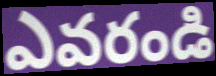
ఎవరండి